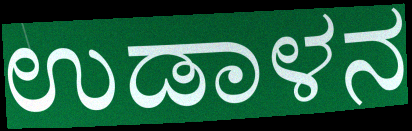
ಉಡಾಳನ